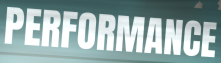
PERFORMANCE